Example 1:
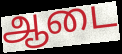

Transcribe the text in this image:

ஆடை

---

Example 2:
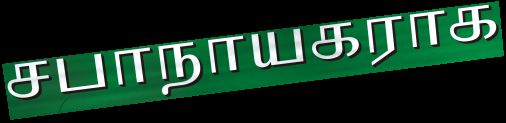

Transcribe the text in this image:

சபாநாயகராக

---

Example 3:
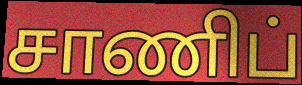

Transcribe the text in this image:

சாணிப்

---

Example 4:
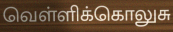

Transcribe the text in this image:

வெள்ளிக்கொலுசு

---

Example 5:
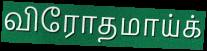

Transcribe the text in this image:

விரோதமாய்க்